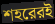
শহরেরই